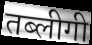
तब्लीगी